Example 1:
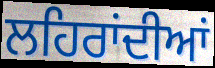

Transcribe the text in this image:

ਲਹਿਰਾਂਦੀਆਂ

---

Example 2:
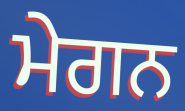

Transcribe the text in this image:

ਮੇਗਨ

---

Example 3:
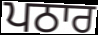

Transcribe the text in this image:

ਪਠਾਰ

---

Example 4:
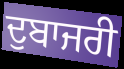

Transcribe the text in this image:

ਦੁਬਾਜਰੀ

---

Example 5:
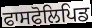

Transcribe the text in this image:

ਫਾਸਫੋਲਿਪਿਡ